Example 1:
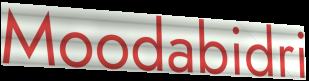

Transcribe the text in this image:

Moodabidri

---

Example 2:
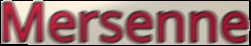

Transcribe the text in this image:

Mersenne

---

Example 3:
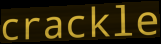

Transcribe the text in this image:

crackle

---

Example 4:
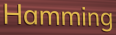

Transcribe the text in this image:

Hamming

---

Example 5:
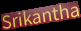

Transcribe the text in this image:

Srikantha